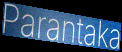
Parantaka